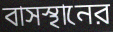
বাসস্থানের